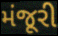
મંજૂરી